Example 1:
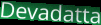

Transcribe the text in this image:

Devadatta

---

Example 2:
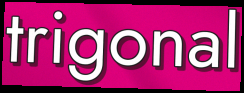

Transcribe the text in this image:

trigonal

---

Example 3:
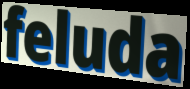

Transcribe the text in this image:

feluda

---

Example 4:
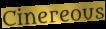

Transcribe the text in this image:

Cinereous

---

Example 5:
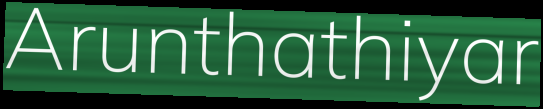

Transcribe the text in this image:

Arunthathiyar